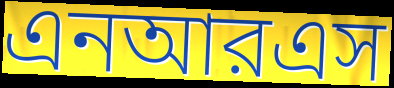
এনআরএস